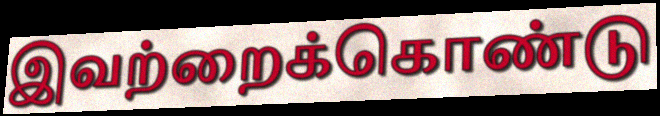
இவற்றைக்கொண்டு